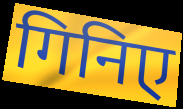
गिनिए